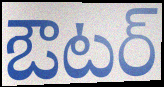
ఔటర్